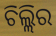
ଚିଲ୍ଲିର